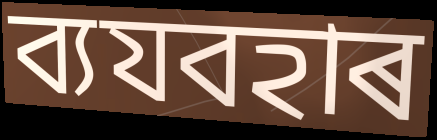
ব্যযবহাৰ